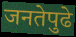
जनतेपुढे